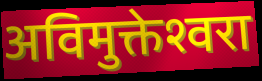
अविमुक्तेश्वरा